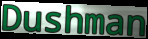
Dushman